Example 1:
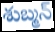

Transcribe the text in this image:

శుబ్మన్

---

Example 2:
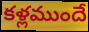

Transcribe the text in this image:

కళ్లముందే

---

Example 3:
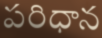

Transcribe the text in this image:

పరిధాన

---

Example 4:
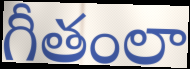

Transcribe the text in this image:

గీతంలా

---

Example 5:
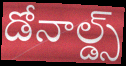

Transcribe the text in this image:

డోనాల్డ్స్